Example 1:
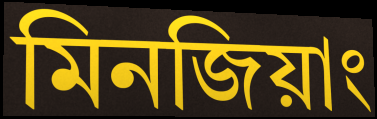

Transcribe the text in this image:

মিনজিয়াং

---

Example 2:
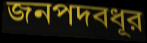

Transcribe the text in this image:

জনপদবধূর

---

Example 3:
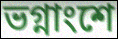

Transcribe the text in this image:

ভগ্নাংশে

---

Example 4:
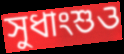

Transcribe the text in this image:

সুধাংশুও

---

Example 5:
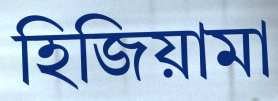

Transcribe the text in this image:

হিজিয়ামা